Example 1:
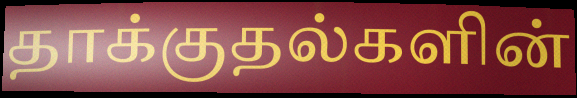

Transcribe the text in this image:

தாக்குதல்களின்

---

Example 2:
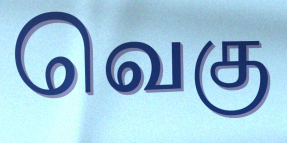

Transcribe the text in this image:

வெகு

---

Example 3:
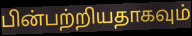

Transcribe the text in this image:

பின்பற்றியதாகவும்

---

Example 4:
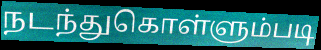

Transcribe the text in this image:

நடந்துகொள்ளும்படி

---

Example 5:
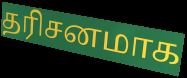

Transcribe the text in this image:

தரிசனமாக